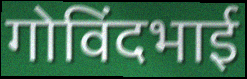
गोविंदभाई